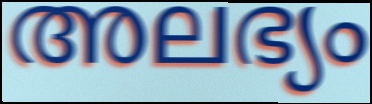
അലഭ്യം